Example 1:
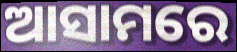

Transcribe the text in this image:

ଆସାମରେ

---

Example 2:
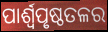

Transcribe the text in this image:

ପାର୍ଶ୍ଵପୃଷ୍ଠତଳର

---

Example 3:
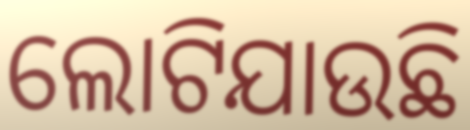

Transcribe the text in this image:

ଲୋଟିଯାଉଛି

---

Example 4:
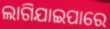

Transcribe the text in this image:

ଲାଗିଯାଇପାରେ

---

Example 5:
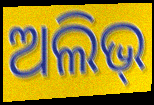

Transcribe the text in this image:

ଅଲିଭ୍